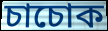
চাচোক